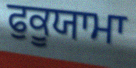
ਫੁਕੂਯਾਮਾ